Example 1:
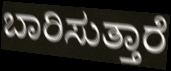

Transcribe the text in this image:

ಬಾರಿಸುತ್ತಾರೆ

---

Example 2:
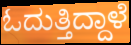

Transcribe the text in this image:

ಓದುತ್ತಿದ್ದಾಳೆ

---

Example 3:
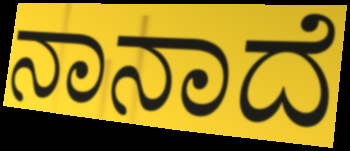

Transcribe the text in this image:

ನಾನಾದೆ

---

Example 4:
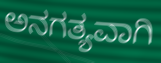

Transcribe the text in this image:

ಅನಗತ್ಯವಾಗಿ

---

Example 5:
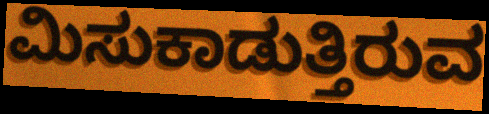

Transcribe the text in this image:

ಮಿಸುಕಾಡುತ್ತಿರುವ